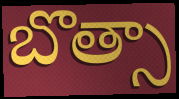
బొత్సా